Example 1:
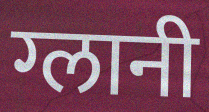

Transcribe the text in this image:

ग्लानी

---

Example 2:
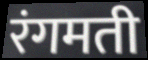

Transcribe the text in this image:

रंगमती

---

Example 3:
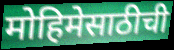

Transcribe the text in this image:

मोहिमेसाठीची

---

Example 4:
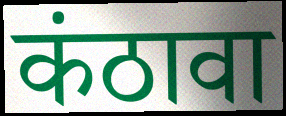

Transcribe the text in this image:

कंठावा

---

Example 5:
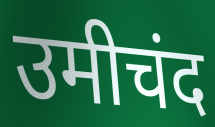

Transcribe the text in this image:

उमीचंद